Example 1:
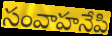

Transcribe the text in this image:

సంవాహనేపి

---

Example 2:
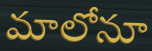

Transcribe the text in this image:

మాలోనూ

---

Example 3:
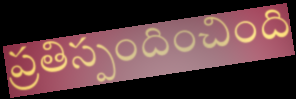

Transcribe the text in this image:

ప్రతిస్పందించింది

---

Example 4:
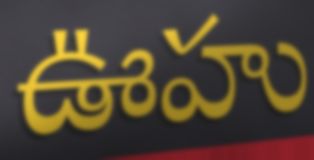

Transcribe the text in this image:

ఊహు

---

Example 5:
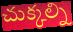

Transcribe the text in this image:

చుక్కల్ని